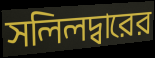
সলিলদ্বারের